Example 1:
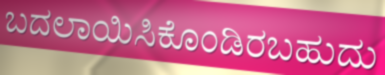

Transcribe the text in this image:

ಬದಲಾಯಿಸಿಕೊಂಡಿರಬಹುದು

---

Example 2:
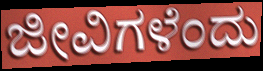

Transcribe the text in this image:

ಜೀವಿಗಳೆಂದು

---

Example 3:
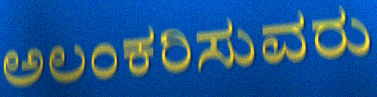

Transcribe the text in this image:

ಅಲಂಕರಿಸುವರು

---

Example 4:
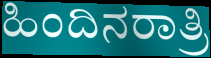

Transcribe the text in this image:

ಹಿಂದಿನರಾತ್ರಿ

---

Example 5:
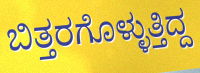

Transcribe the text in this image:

ಬಿತ್ತರಗೊಳ್ಳುತ್ತಿದ್ದ